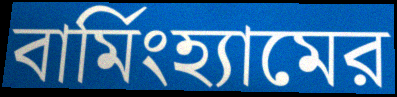
বার্মিংহ্যামের